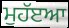
ਮੁਹੱੲਆ